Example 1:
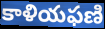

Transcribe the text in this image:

కాళియఫణి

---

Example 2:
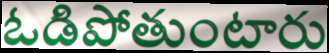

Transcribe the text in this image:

ఓడిపోతుంటారు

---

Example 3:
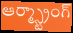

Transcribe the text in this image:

ఆర్మ్స్ట్రాంగ్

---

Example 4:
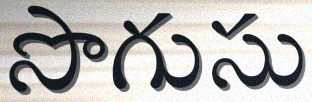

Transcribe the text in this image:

సొగుసు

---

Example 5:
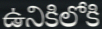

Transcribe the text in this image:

ఉనికిలోకి